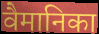
वैमानिका